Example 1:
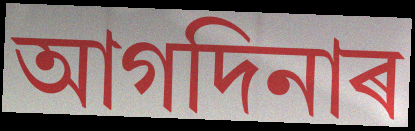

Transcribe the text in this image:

আগদিনাৰ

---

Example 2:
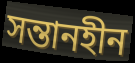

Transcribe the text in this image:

সন্তানহীন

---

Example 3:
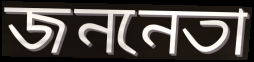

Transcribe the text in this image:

জননেতা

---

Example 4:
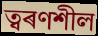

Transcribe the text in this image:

ত্বৰণশীল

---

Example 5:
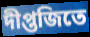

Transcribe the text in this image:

দীপ্তজিতে